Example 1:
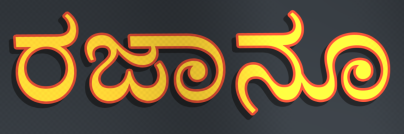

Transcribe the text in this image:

ರಜಾನೂ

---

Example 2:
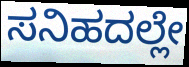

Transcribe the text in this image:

ಸನಿಹದಲ್ಲೇ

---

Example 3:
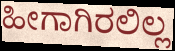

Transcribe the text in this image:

ಹೀಗಾಗಿರಲಿಲ್ಲ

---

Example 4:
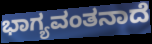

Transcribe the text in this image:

ಭಾಗ್ಯವಂತನಾದೆ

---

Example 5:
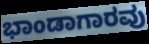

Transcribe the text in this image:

ಭಾಂಡಾಗಾರವು